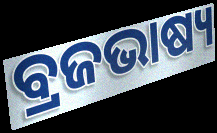
ବ୍ରଜଭାଷ୍ୟ